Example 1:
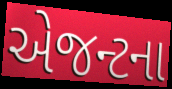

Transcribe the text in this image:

એજન્ટના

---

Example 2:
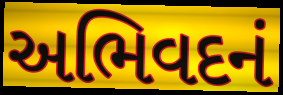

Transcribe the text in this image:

અભિવદનં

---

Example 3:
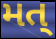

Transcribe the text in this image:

મત્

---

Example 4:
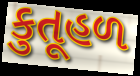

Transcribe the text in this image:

કુતૂહળ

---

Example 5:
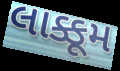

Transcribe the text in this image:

લાક્કૂમ